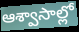
ఆశ్వాసాల్లో